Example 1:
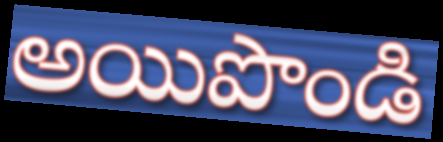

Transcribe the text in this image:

అయిపొండి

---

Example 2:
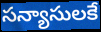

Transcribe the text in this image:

సన్యాసులకే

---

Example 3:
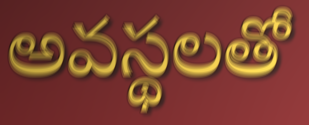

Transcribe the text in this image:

అవస్థలతో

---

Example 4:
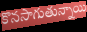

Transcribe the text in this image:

కొనసాగుతున్నాయి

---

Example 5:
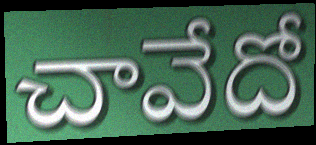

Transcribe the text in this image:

చావేదో